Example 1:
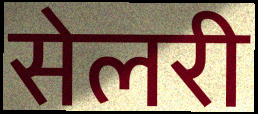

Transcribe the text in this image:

सेलरी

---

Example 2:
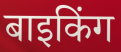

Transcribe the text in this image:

बाइकिंग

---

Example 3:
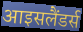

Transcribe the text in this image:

आइसलैंडर्स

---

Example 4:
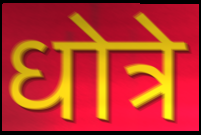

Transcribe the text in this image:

धोत्रे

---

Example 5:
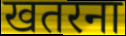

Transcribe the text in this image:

खतरना